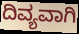
ದಿವ್ಯವಾಗಿ